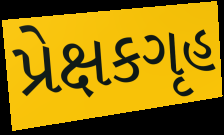
પ્રેક્ષકગૃહ